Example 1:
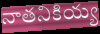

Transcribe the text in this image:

నాతనికియ్య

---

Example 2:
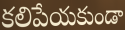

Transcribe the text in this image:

కలిపేయకుండా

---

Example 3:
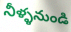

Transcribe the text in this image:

నీళ్ళనుండి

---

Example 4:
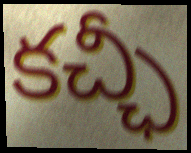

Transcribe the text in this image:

కచ్ఛీ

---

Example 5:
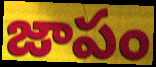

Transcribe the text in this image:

జాపం